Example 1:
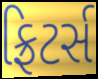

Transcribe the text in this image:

ફ્રિટર્સ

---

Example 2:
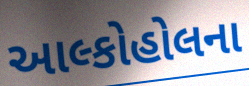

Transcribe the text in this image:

આલ્કોહોલના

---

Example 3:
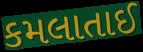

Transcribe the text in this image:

કમલાતાઈ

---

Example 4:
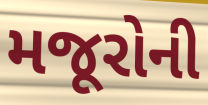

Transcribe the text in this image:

મજૂરોની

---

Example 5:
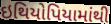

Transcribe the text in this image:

ઇથિયોપિયામાંથી